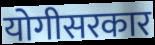
योगीसरकार